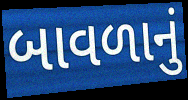
બાવળાનું